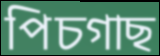
পিচগাছ